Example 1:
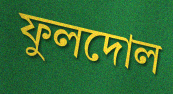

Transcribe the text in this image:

ফুলদোল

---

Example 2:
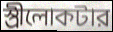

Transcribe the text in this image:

স্ত্রীলোকটার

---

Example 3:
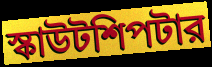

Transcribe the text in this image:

স্কাউটশিপটার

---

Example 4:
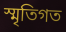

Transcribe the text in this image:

স্মৃতিগত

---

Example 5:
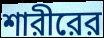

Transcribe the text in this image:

শারীরের